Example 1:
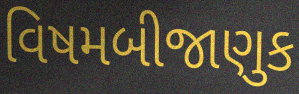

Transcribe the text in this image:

વિષમબીજાણુક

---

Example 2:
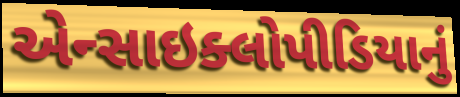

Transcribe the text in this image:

એન્સાઇક્લોપીડિયાનું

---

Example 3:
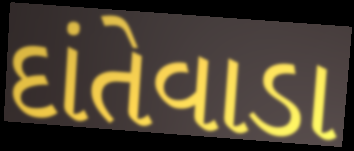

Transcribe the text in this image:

દાંતેવાડા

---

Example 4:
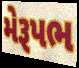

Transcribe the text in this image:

મેરૂપભ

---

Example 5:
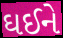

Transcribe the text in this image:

ઘઈને